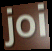
joi